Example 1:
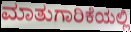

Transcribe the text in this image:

ಮಾತುಗಾರಿಕೆಯಲ್ಲಿ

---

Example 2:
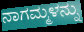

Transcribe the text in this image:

ನಾಗಮ್ಮಳನ್ನು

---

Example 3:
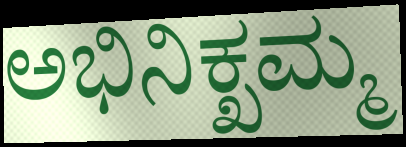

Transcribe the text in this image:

ಅಭಿನಿಕ್ಖಮ್ಮ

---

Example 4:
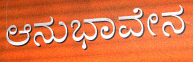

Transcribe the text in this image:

ಆನುಭಾವೇನ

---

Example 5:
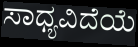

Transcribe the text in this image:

ಸಾಧ್ಯವಿದೆಯೆ